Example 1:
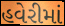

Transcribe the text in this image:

હવેરીમાં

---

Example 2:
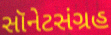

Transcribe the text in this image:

સૉનેટસંગ્રહ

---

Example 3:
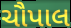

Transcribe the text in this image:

ચૌપાલ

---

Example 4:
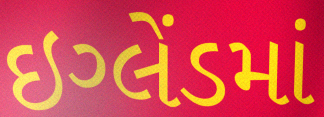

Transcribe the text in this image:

ઇગ્લેંડમાં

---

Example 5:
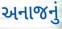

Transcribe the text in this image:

અનાજનું